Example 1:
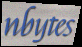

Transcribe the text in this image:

nbytes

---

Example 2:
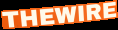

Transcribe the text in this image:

THEWIRE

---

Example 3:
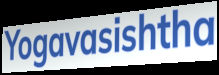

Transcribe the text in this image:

Yogavasishtha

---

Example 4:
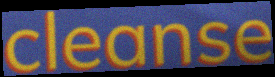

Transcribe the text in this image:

cleanse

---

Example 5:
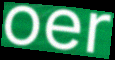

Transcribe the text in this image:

oer